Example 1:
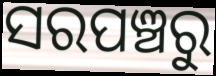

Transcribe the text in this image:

ସରପଞ୍ଚରୁ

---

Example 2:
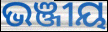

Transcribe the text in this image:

ଭଞ୍ଜୀୟ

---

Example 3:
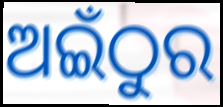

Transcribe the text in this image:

ଅଇଁଠୁର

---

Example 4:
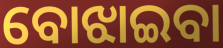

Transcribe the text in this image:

ବୋଝାଇବା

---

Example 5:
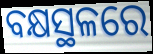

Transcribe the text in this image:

ବକ୍ଷସ୍ଥଳରେ